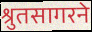
श्रुतसागरने